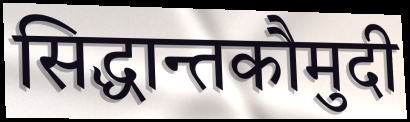
सिद्धान्तकौमुदी